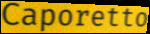
Caporetto